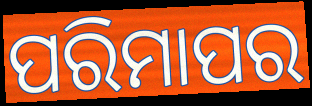
ପରିମାପର